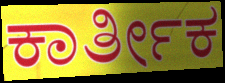
ಕಾರ್ತೀಕ